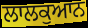
ਲਾਲਕੁਆਨ